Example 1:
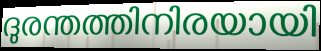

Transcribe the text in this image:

ദുരന്തത്തിനിരയായി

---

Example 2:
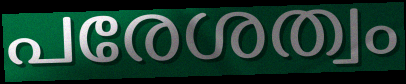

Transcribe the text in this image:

പരേശത്വം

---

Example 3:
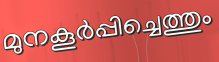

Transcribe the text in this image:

മുനകൂർപ്പിച്ചെത്തും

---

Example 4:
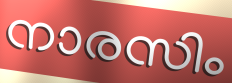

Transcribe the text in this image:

നാരസിം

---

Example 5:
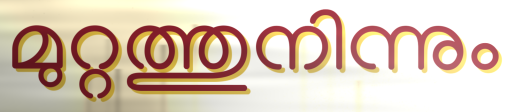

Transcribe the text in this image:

മുറ്റത്തുനിന്നും